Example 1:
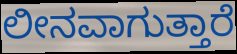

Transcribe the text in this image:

ಲೀನವಾಗುತ್ತಾರೆ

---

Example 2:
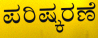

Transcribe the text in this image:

ಪರಿಷ್ಕರಣೆ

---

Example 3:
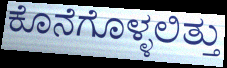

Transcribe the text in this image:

ಕೊನೆಗೊಳ್ಳಲಿತ್ತು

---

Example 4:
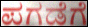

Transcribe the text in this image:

ಪಗಡೆಗೆ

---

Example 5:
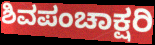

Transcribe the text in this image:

ಶಿವಪಂಚಾಕ್ಷರಿ